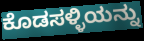
ಕೊಡಸಳ್ಳಿಯನ್ನು